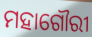
ମହାଗୌରୀ